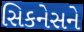
સિકનેસને